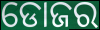
ଡୋଜର